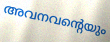
അവനവന്റെയും